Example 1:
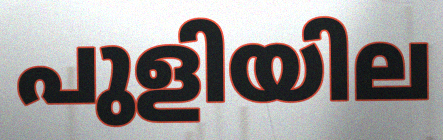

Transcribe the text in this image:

പുളിയില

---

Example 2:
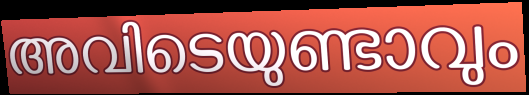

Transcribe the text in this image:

അവിടെയുണ്ടാവും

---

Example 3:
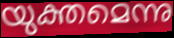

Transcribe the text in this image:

യുക്തമെന്നു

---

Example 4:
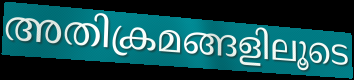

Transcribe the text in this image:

അതിക്രമങ്ങളിലൂടെ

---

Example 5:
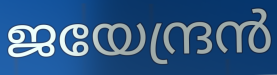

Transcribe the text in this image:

ജയേന്ദ്രൻ